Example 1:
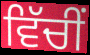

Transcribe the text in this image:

ਵਿੱਚੀਂ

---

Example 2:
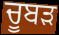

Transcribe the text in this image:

ਚੂਬੜ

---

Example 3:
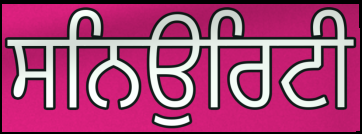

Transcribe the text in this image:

ਸਨਿਉਰਿਟੀ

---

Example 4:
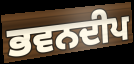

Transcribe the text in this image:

ਭਵਨਦੀਪ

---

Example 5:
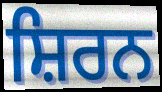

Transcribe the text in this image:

ਸ਼ਿਰਨ